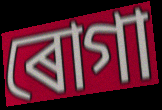
ৰোগা